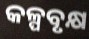
କଳ୍ପବୃକ୍ଷ